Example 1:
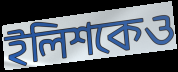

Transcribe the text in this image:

ইলিশকেও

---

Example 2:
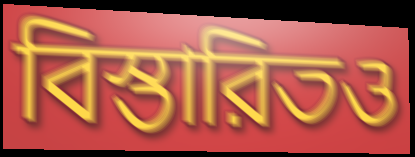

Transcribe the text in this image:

বিস্তারিতও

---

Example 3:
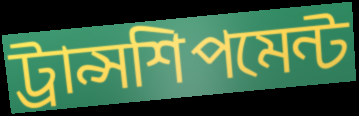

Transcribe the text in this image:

ট্রান্সশিপমেন্ট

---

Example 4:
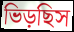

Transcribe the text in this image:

ভিড়ছিস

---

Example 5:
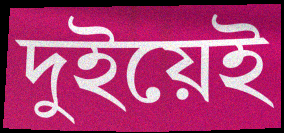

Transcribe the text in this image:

দুইয়েই